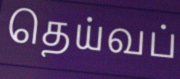
தெய்வப்